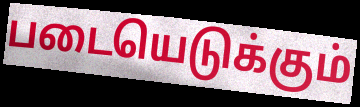
படையெடுக்கும்